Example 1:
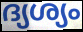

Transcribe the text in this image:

ദ്യശ്യം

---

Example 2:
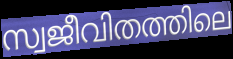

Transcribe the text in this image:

സ്വജീവിതത്തിലെ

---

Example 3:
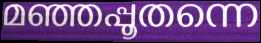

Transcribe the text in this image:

മഞ്ഞപ്പൂതന്നെ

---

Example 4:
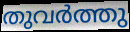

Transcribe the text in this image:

തുവർത്തു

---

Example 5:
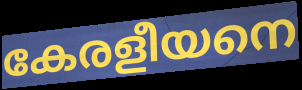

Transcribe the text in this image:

കേരളീയനെ